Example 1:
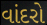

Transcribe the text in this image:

વાંદરો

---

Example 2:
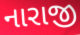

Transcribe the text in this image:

નારાજી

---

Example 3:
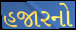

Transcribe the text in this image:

હજારનો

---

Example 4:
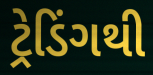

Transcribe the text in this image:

ટ્રેડિંગથી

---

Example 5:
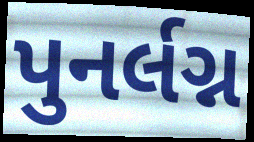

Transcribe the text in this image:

પુનર્લગ્ન